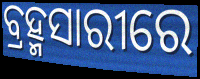
ବ୍ରହ୍ମସାରୀରେ